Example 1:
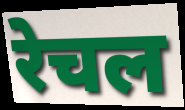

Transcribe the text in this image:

रेचल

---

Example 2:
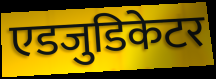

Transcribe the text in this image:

एडजुडिकेटर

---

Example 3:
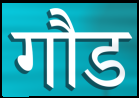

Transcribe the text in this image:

गौड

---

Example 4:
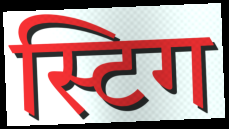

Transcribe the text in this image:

स्टिग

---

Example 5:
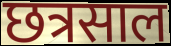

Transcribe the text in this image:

छत्रसाल